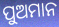
ପୁଅମାନ